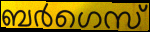
ബർഗെസ്